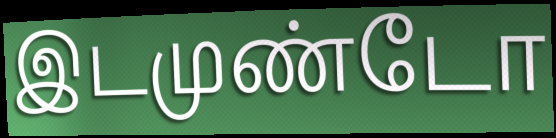
இடமுண்டோ